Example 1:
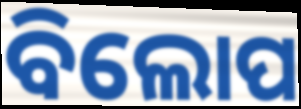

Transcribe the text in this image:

ବିଲୋପ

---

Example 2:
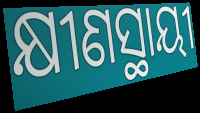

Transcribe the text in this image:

କ୍ଷୀଣସ୍ଥାୟୀ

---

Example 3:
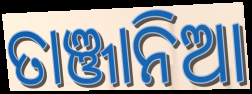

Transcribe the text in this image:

ତାଞ୍ଜାନିଆ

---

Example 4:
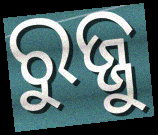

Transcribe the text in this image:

ରୁଜ୍ଜୁ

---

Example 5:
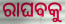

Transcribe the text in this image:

ରାଘବକୁ